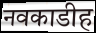
नवकाडीह